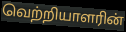
வெற்றியாளரின்